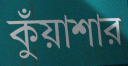
কুঁয়াশার